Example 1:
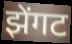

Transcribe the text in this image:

झेंगट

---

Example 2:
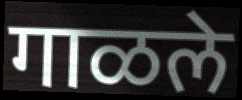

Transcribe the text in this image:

गाळले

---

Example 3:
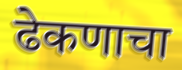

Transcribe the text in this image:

ढेकणाचा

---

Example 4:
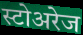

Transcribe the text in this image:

स्टोअरेज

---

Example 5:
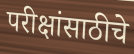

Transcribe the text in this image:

परीक्षांसाठीचे